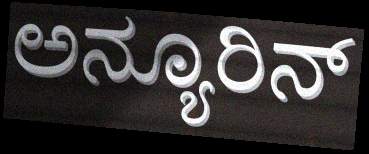
ಅನ್ಯೂರಿನ್